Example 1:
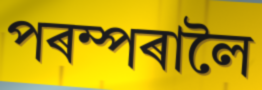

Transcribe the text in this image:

পৰম্পৰালৈ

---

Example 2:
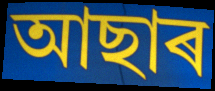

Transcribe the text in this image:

আছাৰ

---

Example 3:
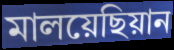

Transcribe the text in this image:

মালয়েছিয়ান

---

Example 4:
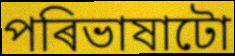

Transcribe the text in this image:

পৰিভাষাটো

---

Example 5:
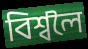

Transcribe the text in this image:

বিশ্বলৈ